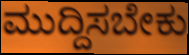
ಮುದ್ದಿಸಬೇಕು